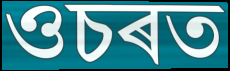
ওচৰত